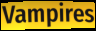
Vampires